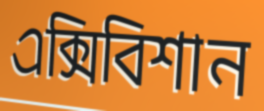
এক্সিবিশান